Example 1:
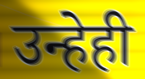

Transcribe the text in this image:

उन्हेही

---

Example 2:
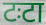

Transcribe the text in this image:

टःटा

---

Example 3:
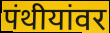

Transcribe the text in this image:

पंथीयांवर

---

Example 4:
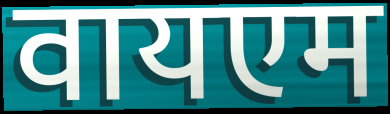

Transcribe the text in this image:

वायएम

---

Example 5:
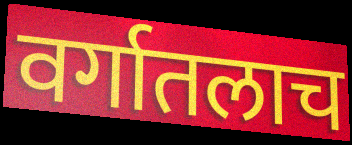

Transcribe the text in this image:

वर्गातलाच